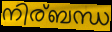
നിര്ബന്ധ